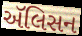
ઍલિસન